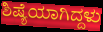
ಶಿಷ್ಯೆಯಾಗಿದ್ದಳು